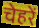
चेहरें